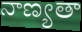
నాణ్యతా